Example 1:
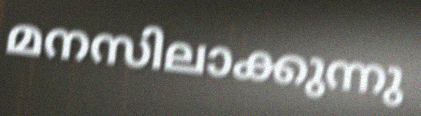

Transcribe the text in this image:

മനസിലാക്കുന്നു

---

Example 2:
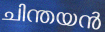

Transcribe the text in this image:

ചിന്തയൻ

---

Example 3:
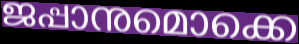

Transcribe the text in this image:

ജപ്പാനുമൊക്കെ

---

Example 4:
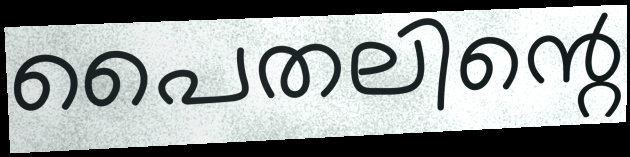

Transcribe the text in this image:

പൈതലിന്റെ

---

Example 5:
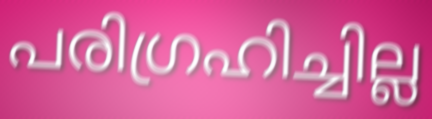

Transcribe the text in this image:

പരിഗ്രഹിച്ചില്ല